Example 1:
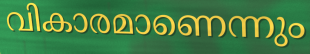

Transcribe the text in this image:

വികാരമാണെന്നും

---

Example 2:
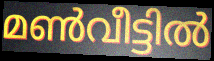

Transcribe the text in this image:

മൺവീട്ടിൽ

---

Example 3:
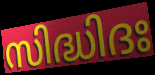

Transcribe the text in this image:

സിദ്ധിദഃ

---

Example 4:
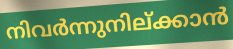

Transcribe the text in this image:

നിവർന്നുനില്ക്കാൻ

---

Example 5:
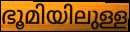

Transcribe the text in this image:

ഭൂമിയിലുള്ള